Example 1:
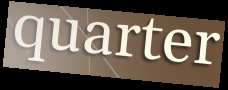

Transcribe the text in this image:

quarter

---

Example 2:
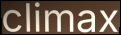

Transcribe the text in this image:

climax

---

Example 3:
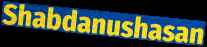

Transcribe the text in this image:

Shabdanushasan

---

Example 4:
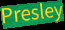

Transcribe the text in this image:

Presley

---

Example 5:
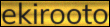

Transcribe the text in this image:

ekirooto